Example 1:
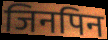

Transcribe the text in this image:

जिनपिन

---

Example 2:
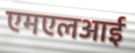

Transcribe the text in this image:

एमएलआई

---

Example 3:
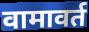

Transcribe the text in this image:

वामावर्त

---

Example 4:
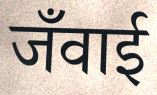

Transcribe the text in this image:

जँवाई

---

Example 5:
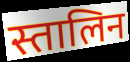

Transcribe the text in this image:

स्तालिन